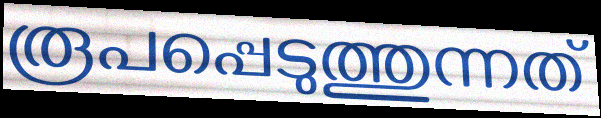
രൂപപ്പെടുത്തുന്നത്